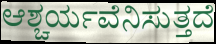
ಆಶ್ಚರ್ಯವೆನಿಸುತ್ತದೆ